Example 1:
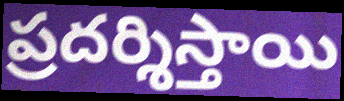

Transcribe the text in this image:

ప్రదర్శిస్తాయి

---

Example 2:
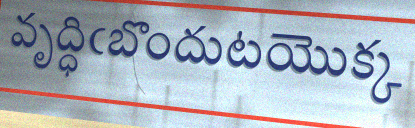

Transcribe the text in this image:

వృద్ధిఁబొందుటయొక్క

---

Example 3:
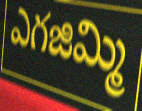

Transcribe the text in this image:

ఎగజిమ్మి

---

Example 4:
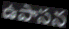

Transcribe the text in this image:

ఉపాసన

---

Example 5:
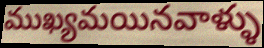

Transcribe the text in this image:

ముఖ్యమయినవాళ్ళు